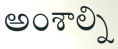
అంశాల్ని